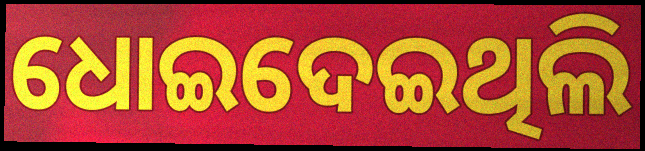
ଧୋଇଦେଇଥିଲି